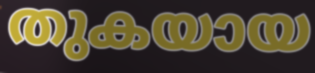
തുകയായ